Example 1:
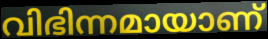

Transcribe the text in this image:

വിഭിന്നമായാണ്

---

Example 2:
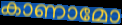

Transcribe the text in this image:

കാണാമോ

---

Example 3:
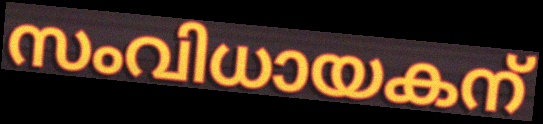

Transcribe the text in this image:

സംവിധായകന്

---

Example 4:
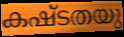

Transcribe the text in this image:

കഷ്ടതയു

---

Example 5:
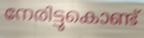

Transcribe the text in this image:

നേരിട്ടുകൊണ്ട്